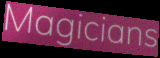
Magicians